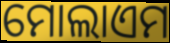
ମୋଲାଏମ